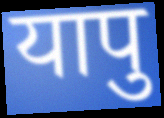
यापु